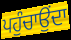
ਪਹੁੰਚਾਉਂਦਾ